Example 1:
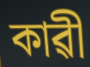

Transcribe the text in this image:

কাৱী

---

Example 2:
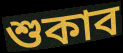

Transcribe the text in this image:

শুকাব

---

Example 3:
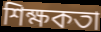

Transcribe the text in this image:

শিক্ষকতা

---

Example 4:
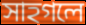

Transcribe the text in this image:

সাহগলে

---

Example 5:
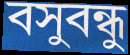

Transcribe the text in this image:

বসুবন্ধু